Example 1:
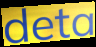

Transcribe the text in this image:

deta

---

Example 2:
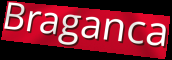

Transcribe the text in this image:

Braganca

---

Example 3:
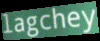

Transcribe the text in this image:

lagchey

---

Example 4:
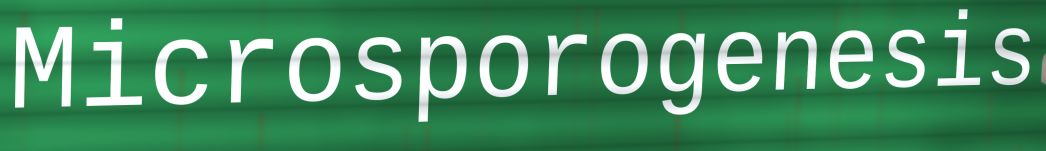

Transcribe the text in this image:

Microsporogenesis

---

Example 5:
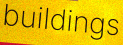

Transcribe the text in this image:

buildings